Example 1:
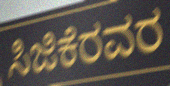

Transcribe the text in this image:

ಸಿಜಿಕೆರವರ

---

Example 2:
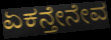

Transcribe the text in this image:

ಏಕನ್ತೇನೇವ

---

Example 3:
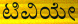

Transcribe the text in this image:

ಟಿವಿಯೇ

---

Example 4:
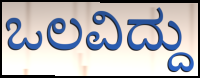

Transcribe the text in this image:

ಒಲವಿದ್ದು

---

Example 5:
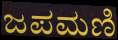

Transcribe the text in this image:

ಜಪಮಣಿ